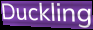
Duckling